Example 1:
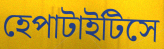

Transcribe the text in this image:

হেপাটাইটিসে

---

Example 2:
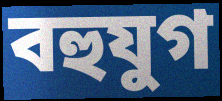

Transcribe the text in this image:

বহুযুগ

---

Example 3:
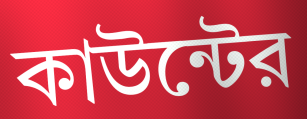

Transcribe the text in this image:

কাউন্টের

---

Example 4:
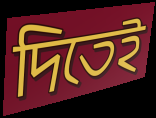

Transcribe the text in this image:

দিতেই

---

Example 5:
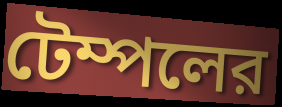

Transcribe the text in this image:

টেম্পলের